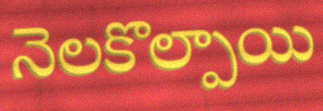
నెలకొల్పాయి